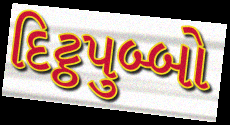
દિટ્ઠપુબ્બો